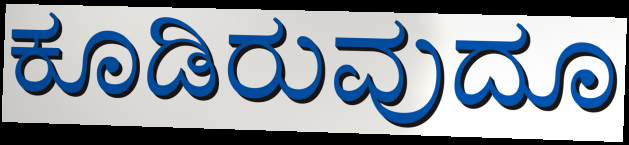
ಕೂಡಿರುವುದೂ